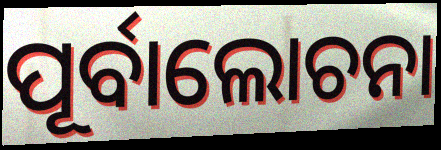
ପୂର୍ବାଲୋଚନା